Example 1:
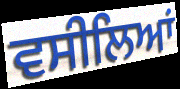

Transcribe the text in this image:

ਵਸੀਲਿਆਂ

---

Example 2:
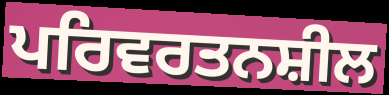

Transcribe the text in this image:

ਪਰਿਵਰਤਨਸ਼ੀਲ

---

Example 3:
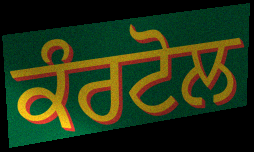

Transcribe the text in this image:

ਕੰਰਟੋਲ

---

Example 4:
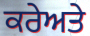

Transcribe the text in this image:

ਕਰੇਅਤੇ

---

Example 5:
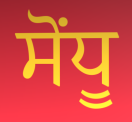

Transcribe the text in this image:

ਸੋਂਧੂ